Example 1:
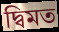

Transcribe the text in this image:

দ্বিমত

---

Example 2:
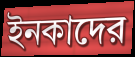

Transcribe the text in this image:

ইনকাদের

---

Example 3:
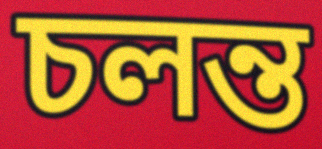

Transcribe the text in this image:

চলন্ত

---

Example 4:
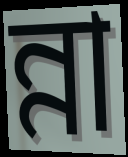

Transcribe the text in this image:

ন্না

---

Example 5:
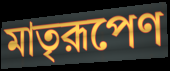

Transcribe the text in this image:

মাতৃরূপেণ